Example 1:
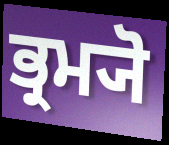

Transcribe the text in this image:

ਭ੍ਰਮ੍ਯੋ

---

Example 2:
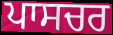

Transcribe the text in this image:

ਪਾਸਚਰ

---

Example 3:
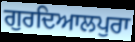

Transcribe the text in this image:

ਗੁਰਦਿਆਲਪੁਰਾ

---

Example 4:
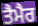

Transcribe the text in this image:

ਤੈਮੈਰ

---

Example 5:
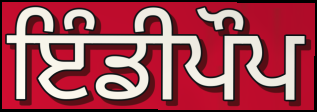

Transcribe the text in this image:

ਇੰਡੀਪੌਪ